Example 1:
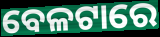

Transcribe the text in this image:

ବେଳଟାରେ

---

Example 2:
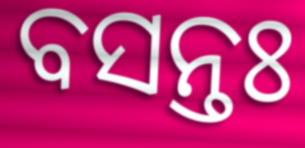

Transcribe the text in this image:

ବସନ୍ତଃ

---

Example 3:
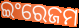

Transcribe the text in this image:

ଇଂରେଜମ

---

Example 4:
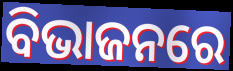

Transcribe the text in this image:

ବିଭାଜନରେ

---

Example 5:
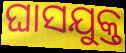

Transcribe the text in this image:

ଘାସଯୁକ୍ତ